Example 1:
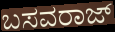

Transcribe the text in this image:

ಬಸವರಾಜ್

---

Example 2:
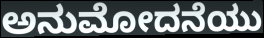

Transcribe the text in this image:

ಅನುಮೋದನೆಯು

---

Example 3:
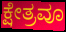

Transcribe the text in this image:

ಕ್ಷೇತ್ರವೂ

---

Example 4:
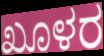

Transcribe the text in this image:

ಖೂಳರ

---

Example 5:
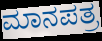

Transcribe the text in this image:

ಮಾನಪತ್ರ